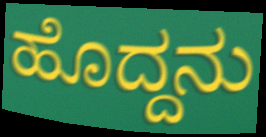
ಹೊದ್ದನು